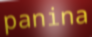
panina